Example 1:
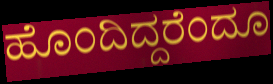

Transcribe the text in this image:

ಹೊಂದಿದ್ದರೆಂದೂ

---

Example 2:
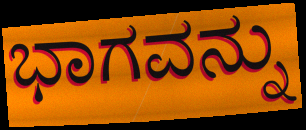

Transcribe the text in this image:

ಭಾಗವನ್ನು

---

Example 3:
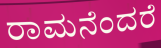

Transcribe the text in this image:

ರಾಮನೆಂದರೆ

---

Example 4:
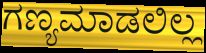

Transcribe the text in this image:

ಗಣ್ಯಮಾಡಲಿಲ್ಲ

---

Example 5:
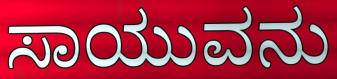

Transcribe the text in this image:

ಸಾಯುವನು